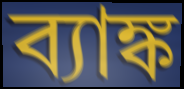
ব্যাঙ্ক